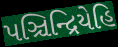
પઞ્ચિન્દ્રિયેહિ